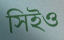
সিইও